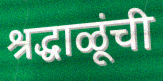
श्रद्धाळूंची